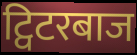
ट्विटरबाज